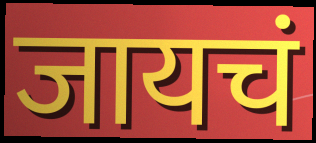
जायचं